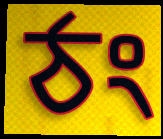
ঠং